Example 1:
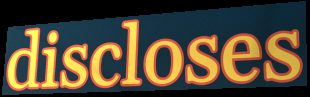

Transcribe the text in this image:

discloses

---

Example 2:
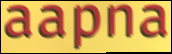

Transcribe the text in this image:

aapna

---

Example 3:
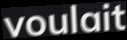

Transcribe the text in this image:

voulait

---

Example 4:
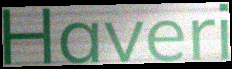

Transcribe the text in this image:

Haveri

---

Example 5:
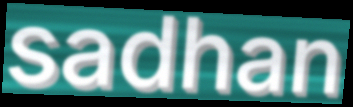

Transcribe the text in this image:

sadhan